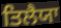
ਤਿਲੈਯਾ